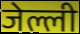
जेल्ली